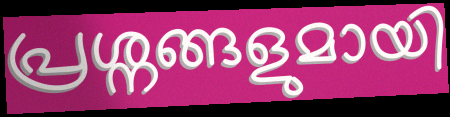
പ്രശ്നങ്ങളുമായി